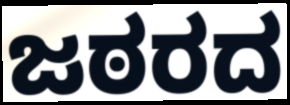
ಜಠರದ